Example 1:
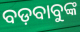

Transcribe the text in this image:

ବଡ଼ବାବୁଙ୍କ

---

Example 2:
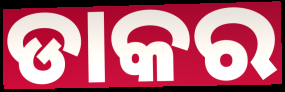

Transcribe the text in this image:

ଡାକର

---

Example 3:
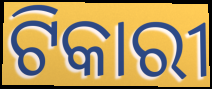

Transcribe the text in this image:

ଟିକାରୀ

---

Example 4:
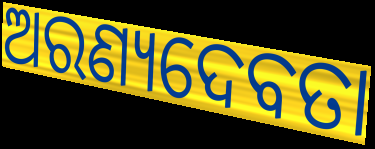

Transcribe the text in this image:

ଅରଣ୍ୟଦେବତା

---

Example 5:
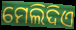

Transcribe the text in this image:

ମେଲିଦିଏ